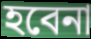
হবেনা